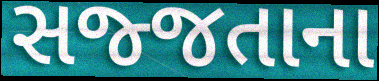
સજ્જતાના